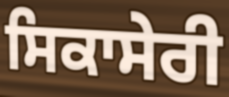
ਸਿਕਾਸੇਰੀ